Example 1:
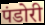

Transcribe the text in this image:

पंडोरी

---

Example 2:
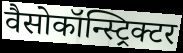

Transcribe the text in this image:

वैसोकॉन्स्ट्रिक्टर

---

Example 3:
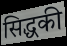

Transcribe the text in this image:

सिद्धकी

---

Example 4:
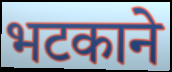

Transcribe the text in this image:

भटकाने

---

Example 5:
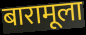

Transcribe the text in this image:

बारामूला